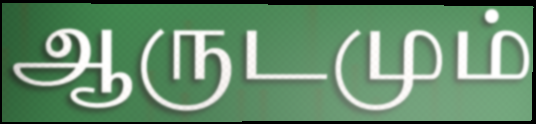
ஆருடமும்